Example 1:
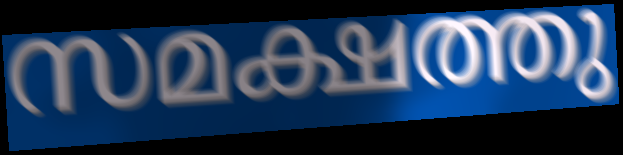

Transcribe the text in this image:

സമക്ഷത്തു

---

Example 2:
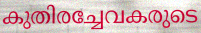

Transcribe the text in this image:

കുതിരച്ചേവകരുടെ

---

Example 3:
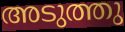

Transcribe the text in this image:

അടുത്തു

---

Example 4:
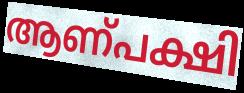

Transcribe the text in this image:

ആണ്പക്ഷി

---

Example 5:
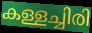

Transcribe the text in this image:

കള്ളച്ചിരി